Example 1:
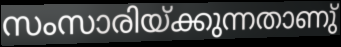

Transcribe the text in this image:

സംസാരിയ്ക്കുന്നതാണു്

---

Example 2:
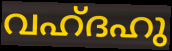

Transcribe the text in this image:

വഹ്ദഹു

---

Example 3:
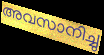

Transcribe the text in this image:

അവസാനിച്ചു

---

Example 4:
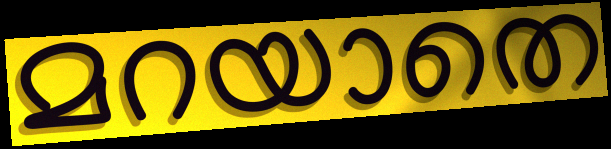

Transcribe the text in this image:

മറയാതെ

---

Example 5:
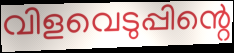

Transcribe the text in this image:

വിളവെടുപ്പിന്റെ